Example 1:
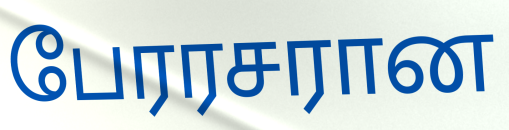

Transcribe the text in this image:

பேரரசரான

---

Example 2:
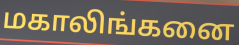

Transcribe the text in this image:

மகாலிங்கனை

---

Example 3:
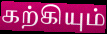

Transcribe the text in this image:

கற்கியும்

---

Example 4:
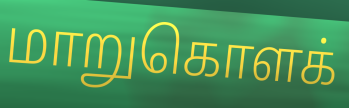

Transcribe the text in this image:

மாறுகொளக்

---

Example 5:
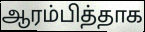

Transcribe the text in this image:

ஆரம்பித்தாக